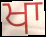
ਖਾ